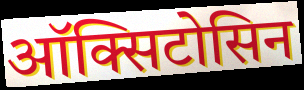
ऑक्सिटोसिन